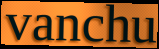
vanchu